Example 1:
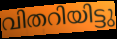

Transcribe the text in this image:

വിതറിയിട്ടു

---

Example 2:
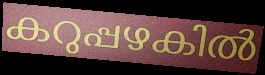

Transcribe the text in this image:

കറുപ്പഴകിൽ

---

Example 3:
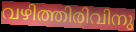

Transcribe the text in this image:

വഴിത്തിരിവിനു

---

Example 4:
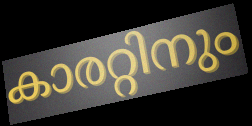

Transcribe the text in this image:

കാരറ്റിനും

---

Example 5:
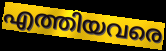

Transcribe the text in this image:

എത്തിയവരെ